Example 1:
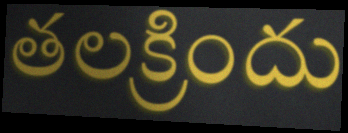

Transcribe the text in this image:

తలక్రిందు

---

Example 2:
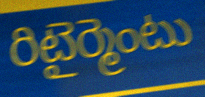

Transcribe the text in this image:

రిటైర్మెంటు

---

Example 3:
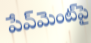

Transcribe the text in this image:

పేవ్‌మెంట్‌పై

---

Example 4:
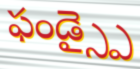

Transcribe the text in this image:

ఫండ్స్పై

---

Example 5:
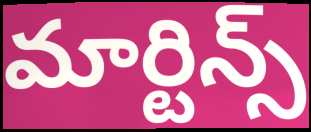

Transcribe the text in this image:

మార్టిన్స్